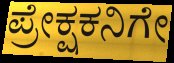
ಪ್ರೇಕ್ಷಕನಿಗೇ